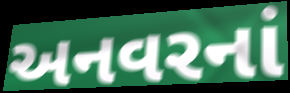
અનવરનાં